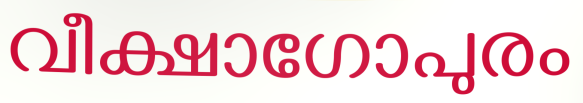
വീക്ഷാഗോപുരം